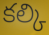
కల్కి